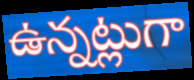
ఉన్నట్లుగా